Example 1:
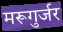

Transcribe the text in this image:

मरूगुर्जर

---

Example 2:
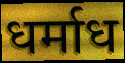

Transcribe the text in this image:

धर्माध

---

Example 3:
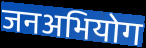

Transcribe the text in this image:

जनअभियोग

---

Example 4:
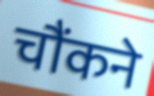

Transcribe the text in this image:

चौंकने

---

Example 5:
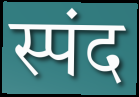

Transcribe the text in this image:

स्पंद